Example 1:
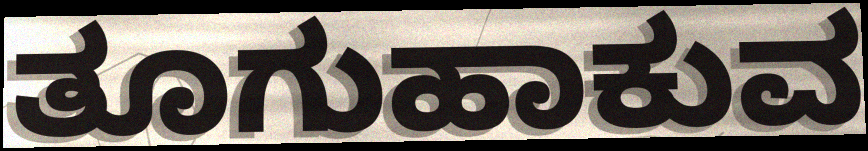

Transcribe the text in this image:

ತೂಗುಹಾಕುವ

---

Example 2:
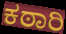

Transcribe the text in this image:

ಕಠಾರಿ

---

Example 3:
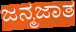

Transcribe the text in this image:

ಜನ್ಮಜಾತ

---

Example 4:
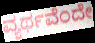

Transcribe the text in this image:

ವ್ಯರ್ಥವೆಂದೇ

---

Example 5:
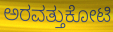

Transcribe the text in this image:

ಅರವತ್ತುಕೋಟಿ